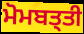
ਮੋਮਬਤ੍ਤੀ